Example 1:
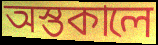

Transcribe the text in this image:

অস্তকালে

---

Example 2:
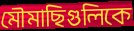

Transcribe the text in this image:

মৌমাছিগুলিকে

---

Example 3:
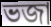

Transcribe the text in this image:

ভজা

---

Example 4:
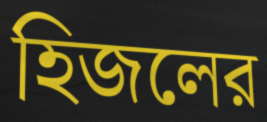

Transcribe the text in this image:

হিজলের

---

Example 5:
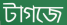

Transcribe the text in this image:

টাগজে